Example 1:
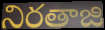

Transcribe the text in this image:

నిరతాజి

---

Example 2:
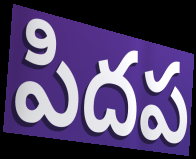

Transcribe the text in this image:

పిదప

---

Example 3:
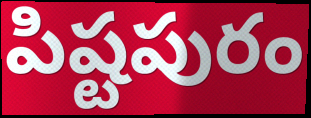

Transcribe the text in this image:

పిష్టపురం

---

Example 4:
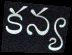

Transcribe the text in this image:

కన్య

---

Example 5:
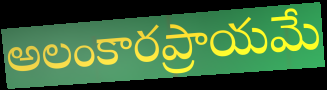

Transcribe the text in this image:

అలంకారప్రాయమే